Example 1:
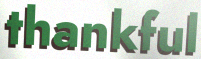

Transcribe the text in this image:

thankful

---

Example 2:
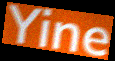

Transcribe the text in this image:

Yine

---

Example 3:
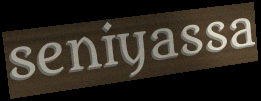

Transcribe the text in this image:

seniyassa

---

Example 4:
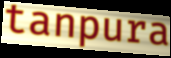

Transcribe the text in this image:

tanpura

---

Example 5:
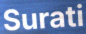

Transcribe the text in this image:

Surati